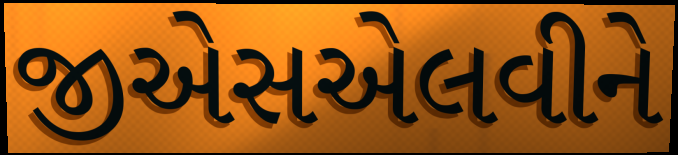
જીએસએલવીને